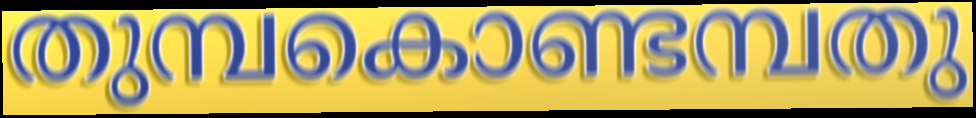
തുമ്പകൊണ്ടമ്പതു